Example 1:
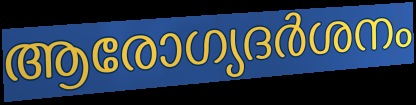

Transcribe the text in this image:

ആരോഗ്യദർശനം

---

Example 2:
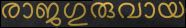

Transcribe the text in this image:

രാജഗുരുവായ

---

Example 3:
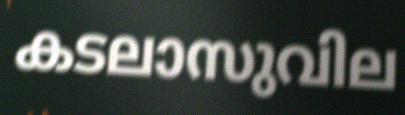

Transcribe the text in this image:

കടലാസുവില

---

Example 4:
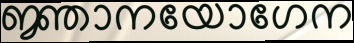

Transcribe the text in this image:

ജ്ഞാനയോഗേന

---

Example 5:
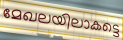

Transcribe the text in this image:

മേഖലയിലാകട്ടെ